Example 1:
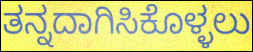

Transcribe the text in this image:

ತನ್ನದಾಗಿಸಿಕೊಳ್ಳಲು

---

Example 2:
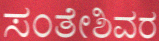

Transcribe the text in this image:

ಸಂತೇಶಿವರ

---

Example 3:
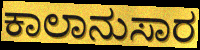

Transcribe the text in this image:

ಕಾಲಾನುಸಾರ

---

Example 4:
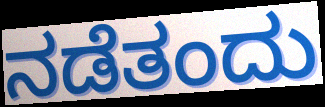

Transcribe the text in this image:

ನಡೆತಂದು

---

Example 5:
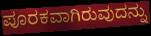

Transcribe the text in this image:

ಪೂರಕವಾಗಿರುವುದನ್ನು